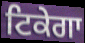
ਟਿਕੇਗਾ